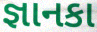
જ્ઞાનકા